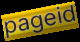
pageid